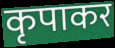
कृपाकर